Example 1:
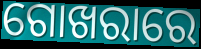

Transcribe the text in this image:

ଗୋଖରାରେ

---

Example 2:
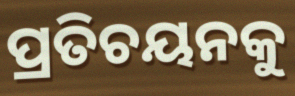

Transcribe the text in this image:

ପ୍ରତିଚୟନକୁ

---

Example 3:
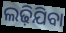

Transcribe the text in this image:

ଲଢ଼ିଯିବା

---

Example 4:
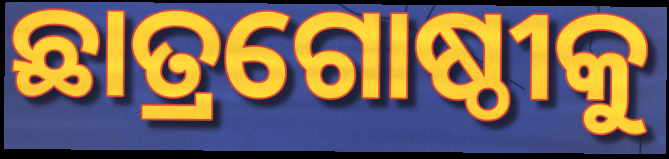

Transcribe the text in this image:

ଛାତ୍ରଗୋଷ୍ଠୀକୁ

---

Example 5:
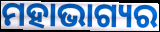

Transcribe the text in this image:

ମହାଭାଗ୍ୟର